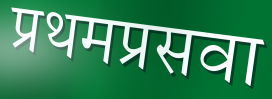
प्रथमप्रसवा